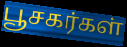
பூசகர்கள்